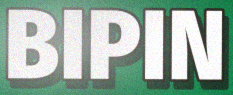
BIPIN